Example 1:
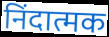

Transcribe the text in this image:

निंदात्मक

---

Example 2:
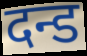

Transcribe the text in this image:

दन्ड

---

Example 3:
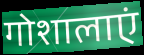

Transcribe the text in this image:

गोशालाएं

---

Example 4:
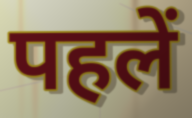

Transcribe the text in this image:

पहलें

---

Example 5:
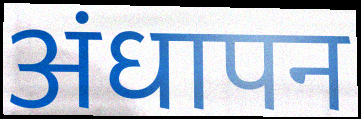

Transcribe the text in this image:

अंधापन